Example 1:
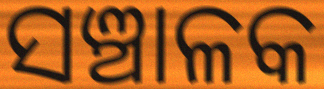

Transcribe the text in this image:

ସଞ୍ଚାଳକ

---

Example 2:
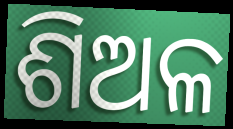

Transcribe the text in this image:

ଶିଅଳ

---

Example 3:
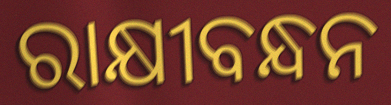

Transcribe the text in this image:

ରାକ୍ଷୀବନ୍ଧନ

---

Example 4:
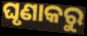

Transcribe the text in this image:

ଘୃଣାକରୁ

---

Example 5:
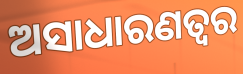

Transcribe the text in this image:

ଅସାଧାରଣତ୍ୱର